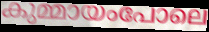
കുമ്മായംപോലെ